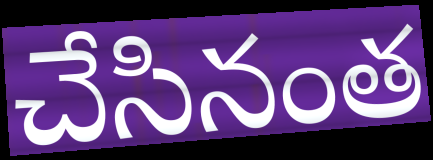
చేసినంత